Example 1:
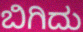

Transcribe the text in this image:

ಬಿಗಿದು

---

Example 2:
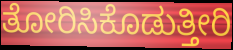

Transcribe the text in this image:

ತೋರಿಸಿಕೊಡುತ್ತೀರಿ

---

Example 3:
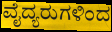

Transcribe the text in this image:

ವೈದ್ಯರುಗಳಿಂದ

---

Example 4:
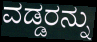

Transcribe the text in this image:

ವಡ್ಡರನ್ನು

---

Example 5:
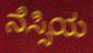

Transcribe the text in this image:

ನೆಸ್ಸಿಯ